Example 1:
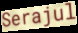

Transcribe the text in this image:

Serajul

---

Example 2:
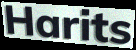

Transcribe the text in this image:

Harits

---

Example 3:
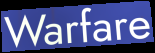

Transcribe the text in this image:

Warfare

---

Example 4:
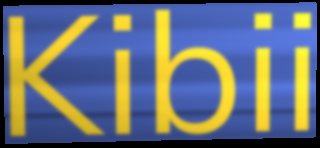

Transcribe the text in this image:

Kibii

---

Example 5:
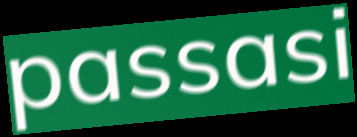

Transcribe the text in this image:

passasi